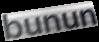
bunun